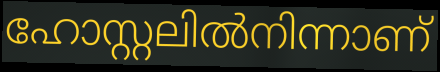
ഹോസ്റ്റലിൽനിന്നാണ്